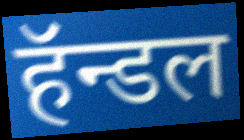
हॅन्डल